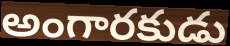
అంగారకుడు